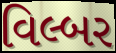
વિલ્બર